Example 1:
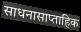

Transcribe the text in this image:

साधनासाप्ताहिक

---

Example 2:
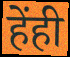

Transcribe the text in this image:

हेंही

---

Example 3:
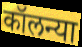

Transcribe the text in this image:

कॉलन्या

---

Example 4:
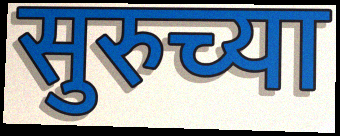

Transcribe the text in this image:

सुरुच्या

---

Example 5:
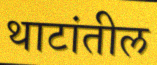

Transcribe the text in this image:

थाटांतील